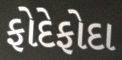
ફોદેફોદા